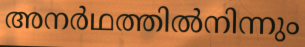
അനർഥത്തിൽനിന്നും